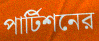
পার্টিশনের